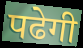
पढेगी